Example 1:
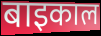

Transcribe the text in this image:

बाइकाल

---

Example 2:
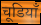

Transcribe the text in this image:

चूडियाँ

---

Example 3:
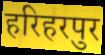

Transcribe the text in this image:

हरिहरपुर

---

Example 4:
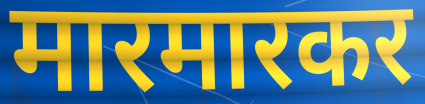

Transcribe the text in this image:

मारमारकर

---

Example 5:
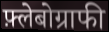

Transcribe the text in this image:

फ़्लेबोग्राफी